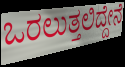
ಒರಲುತ್ತಲಿದ್ದೇನೆ